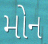
મોન